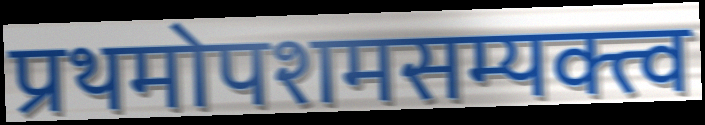
प्रथमोपशमसम्यक्त्व